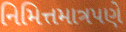
નિમિત્તમાત્રપણે